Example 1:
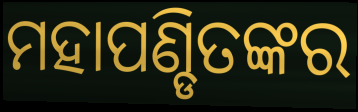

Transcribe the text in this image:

ମହାପଣ୍ଡିତଙ୍କର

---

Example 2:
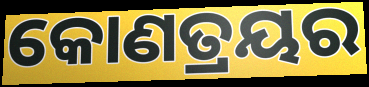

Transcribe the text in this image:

କୋଣତ୍ରୟର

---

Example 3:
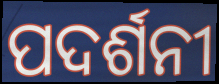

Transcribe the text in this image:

ପଦର୍ଶନୀ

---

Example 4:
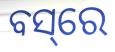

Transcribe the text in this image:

ବସ୍‌ରେ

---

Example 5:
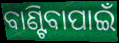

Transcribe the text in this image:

ବାଣ୍ଟିବାପାଇଁ